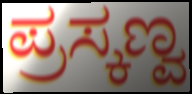
ಪ್ರಸ್ಕಣ್ವ